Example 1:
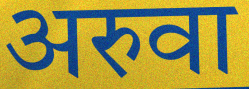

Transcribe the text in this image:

अरुवा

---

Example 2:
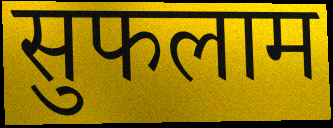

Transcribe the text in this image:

सुफलाम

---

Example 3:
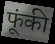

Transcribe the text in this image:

फूंकी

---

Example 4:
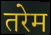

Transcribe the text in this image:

तरेम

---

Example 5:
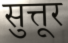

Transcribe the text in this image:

सुत्तूर